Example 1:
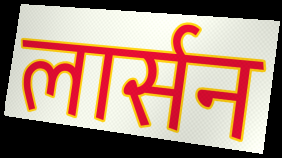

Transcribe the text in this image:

लार्सन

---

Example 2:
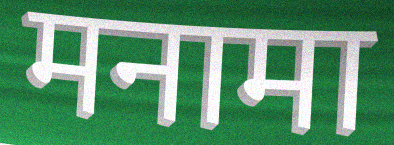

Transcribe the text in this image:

मनामा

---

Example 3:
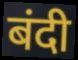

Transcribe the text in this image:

बंदी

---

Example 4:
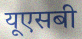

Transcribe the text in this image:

यूएसबी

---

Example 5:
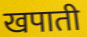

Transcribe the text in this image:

खपाती